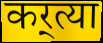
कर्त्या